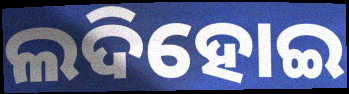
ଲଦିହୋଇ